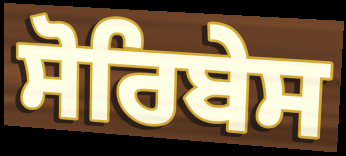
ਸੋਰਿਬੇਸ